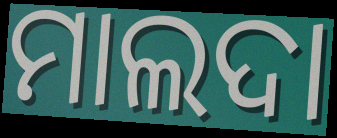
ମାଲଦା